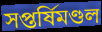
সপ্তর্ষিমণ্ডল